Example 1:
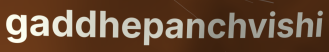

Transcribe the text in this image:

gaddhepanchvishi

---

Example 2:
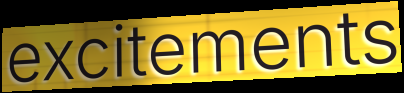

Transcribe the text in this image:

excitements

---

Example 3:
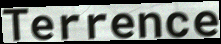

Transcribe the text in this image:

Terrence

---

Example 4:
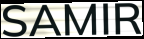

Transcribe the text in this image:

SAMIR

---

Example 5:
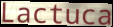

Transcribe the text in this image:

Lactuca